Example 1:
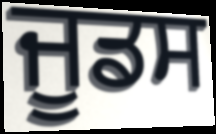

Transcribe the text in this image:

ਜੂਡਸ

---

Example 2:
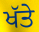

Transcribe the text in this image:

ਖੱਤੇ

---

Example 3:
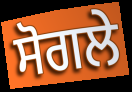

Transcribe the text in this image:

ਸੋਗਲੇ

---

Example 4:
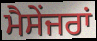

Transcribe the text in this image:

ਮੈਸੇਂਜਰਾਂ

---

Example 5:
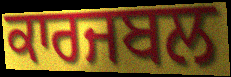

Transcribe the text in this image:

ਕਾਰਜਬਲ